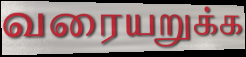
வரையறுக்க